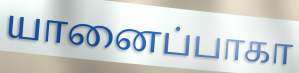
யானைப்பாகா